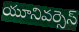
యూనివర్సెస్